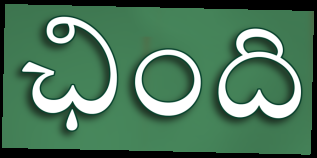
ఛింది